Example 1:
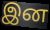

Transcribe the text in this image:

இன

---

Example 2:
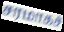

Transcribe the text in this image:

சரமாகச்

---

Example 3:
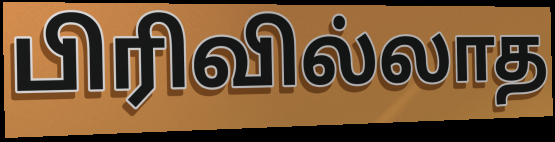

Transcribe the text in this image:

பிரிவில்லாத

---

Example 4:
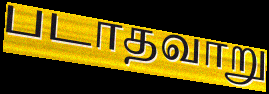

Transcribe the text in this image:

படாதவாறு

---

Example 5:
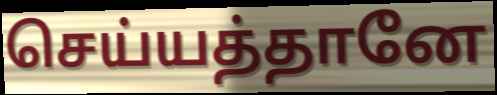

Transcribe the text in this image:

செய்யத்தானே